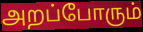
அறப்போரும்